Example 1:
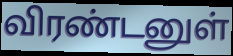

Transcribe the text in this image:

விரண்டனுள்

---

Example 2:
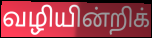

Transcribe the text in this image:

வழியின்றிக்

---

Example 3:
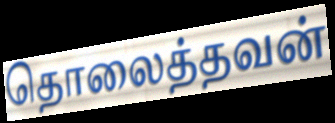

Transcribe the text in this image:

தொலைத்தவன்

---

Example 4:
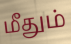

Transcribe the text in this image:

மீதும்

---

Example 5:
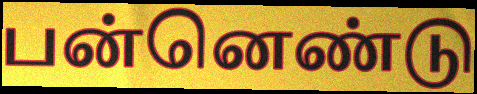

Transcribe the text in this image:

பன்னெண்டு